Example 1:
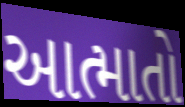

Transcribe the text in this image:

આત્માતો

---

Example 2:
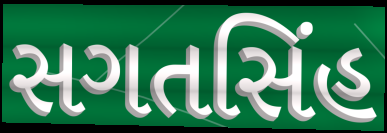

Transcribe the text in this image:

સગતસિંહ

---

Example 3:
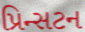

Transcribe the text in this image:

પ્રિન્સટન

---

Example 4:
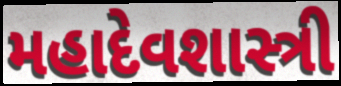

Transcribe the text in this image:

મહાદેવશાસ્ત્રી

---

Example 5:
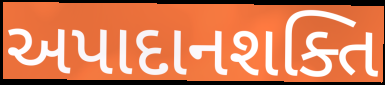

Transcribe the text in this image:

અપાદાનશક્તિ